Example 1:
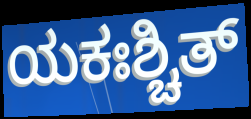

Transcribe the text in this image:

ಯಕಃಶ್ಚಿತ್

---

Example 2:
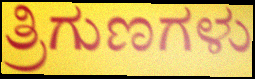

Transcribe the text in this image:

ತ್ರಿಗುಣಗಳು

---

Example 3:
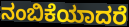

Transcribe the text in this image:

ನಂಬಿಕೆಯಾದರೆ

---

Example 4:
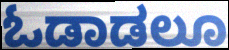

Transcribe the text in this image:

ಓಡಾಡಲೂ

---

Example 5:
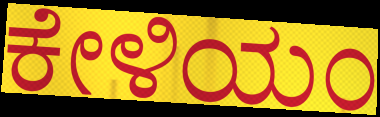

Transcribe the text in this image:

ಕೇಳಿಯಂ